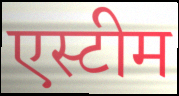
एस्टीम